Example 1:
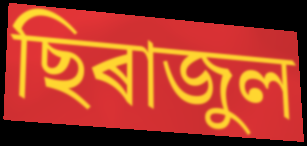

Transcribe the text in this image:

ছিৰাজুল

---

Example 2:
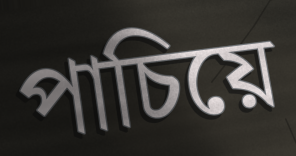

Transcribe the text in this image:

পাচিয়ে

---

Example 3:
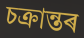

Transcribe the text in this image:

চক্ৰান্তৰ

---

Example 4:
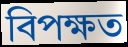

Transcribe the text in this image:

বিপক্ষত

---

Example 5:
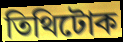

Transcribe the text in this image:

তিথিটোক